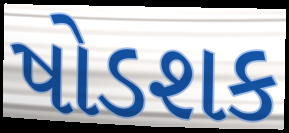
ષોડશક